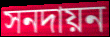
সনদায়ন